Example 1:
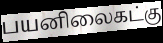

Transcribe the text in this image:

பயனிலைகட்கு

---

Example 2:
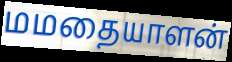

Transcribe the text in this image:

மமதையாளன்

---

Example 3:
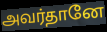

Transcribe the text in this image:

அவர்தானே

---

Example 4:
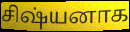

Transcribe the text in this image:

சிஷ்யனாக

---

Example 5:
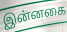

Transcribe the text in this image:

இன்னகை